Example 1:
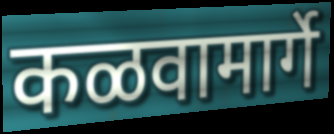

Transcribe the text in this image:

कळवामार्गे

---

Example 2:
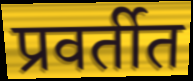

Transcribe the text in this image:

प्रवर्तीत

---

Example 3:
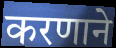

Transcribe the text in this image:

करणाने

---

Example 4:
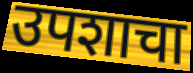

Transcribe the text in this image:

उपशाचा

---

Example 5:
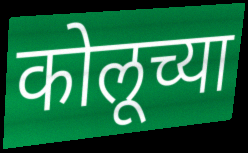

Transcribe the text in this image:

कोलूच्या